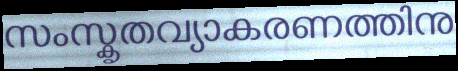
സംസ്കൃതവ്യാകരണത്തിനു